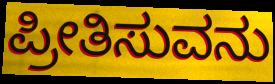
ಪ್ರೀತಿಸುವನು